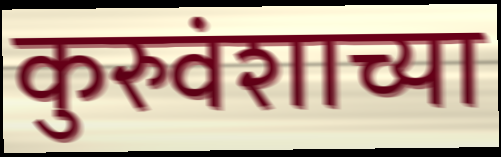
कुरुवंशाच्या